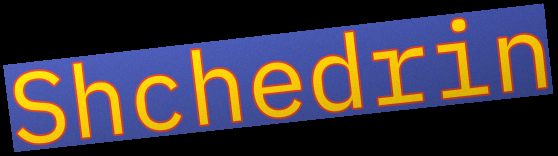
Shchedrin